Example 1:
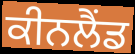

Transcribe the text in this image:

ਕੀਨਲੈਂਡ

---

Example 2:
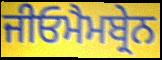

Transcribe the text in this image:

ਜੀਓਮੈਮਬ੍ਰੇਨ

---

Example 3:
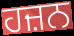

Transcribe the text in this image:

ਹਜ਼ਨ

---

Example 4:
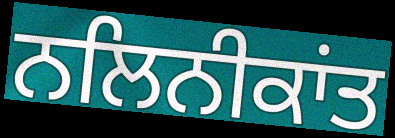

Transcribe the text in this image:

ਨਲਿਨੀਕਾਂਤ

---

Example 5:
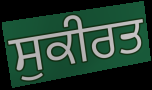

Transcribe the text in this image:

ਸੁਕੀਰਤ